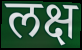
लक्ष